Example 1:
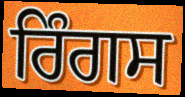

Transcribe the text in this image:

ਰਿੰਗਸ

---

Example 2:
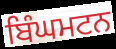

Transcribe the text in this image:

ਬਿੰਘਮਟਨ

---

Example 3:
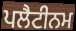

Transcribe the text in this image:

ਪਲੈਟੀਨਮ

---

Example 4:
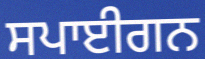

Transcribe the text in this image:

ਸਪਾਈਗਨ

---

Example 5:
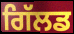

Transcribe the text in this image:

ਗਿੱਲਡ